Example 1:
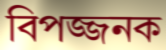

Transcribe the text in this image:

বিপজ্জনক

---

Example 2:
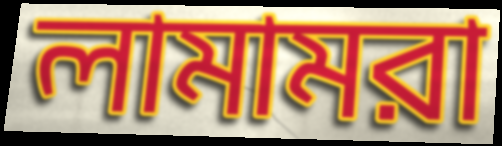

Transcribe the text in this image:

লামামরা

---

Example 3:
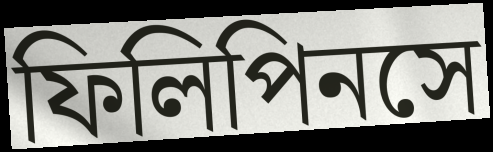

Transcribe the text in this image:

ফিলিপিনসে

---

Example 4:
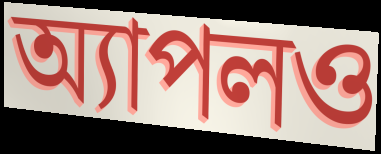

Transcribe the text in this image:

অ্যাপলও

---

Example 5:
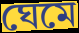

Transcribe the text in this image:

ঘেমে